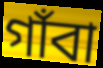
গাঁবা